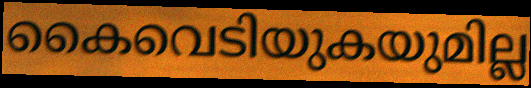
കൈവെടിയുകയുമില്ല